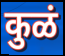
कुळं